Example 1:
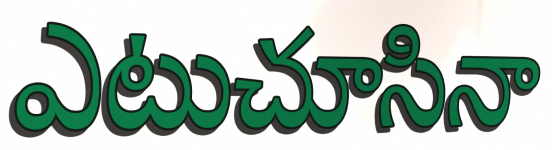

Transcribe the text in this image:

ఎటుచూసినా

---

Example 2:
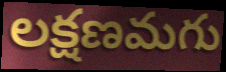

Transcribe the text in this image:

లక్షణమగు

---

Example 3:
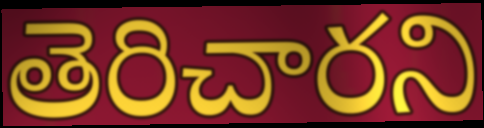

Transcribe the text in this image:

తెరిచారని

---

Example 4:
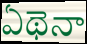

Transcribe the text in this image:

ఏథెనా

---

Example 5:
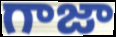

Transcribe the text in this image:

గాజా